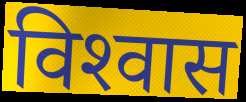
विश्‍वास